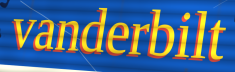
vanderbilt